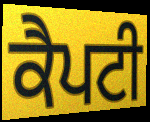
ਕੈਪਟੀ